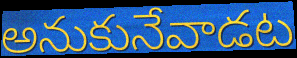
అనుకునేవాడట